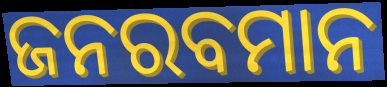
ଜନରବମାନ